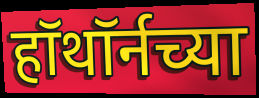
हॉथॉर्नच्या